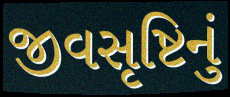
જીવસૃષ્ટિનું